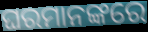
ଘରମାନଙ୍କରେ